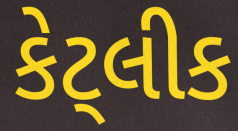
કેટ્લીક